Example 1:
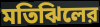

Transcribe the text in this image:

মতিঝিলের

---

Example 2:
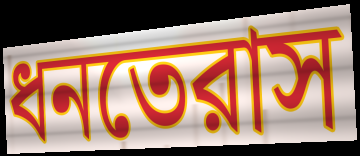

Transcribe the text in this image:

ধনতেরাস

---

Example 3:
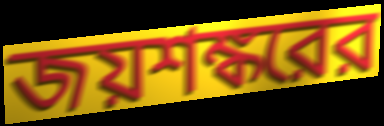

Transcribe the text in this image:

জয়শঙ্করের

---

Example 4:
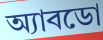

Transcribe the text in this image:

অ্যাবডো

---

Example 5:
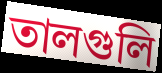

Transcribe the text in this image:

তালগুলি